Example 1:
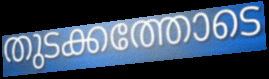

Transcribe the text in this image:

തുടക്കത്തോടെ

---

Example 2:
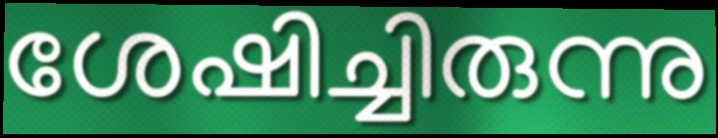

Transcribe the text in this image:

ശേഷിച്ചിരുന്നു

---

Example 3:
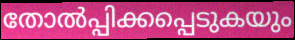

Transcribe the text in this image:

തോൽപ്പിക്കപ്പെടുകയും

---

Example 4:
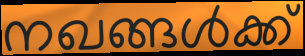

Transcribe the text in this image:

നഖങ്ങൾക്ക്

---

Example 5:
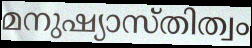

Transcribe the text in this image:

മനുഷ്യാസ്തിത്വം